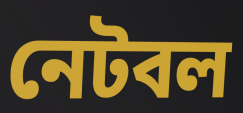
নেটবল